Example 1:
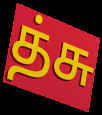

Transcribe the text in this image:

த்சு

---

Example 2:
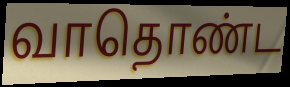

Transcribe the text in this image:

வாதொண்ட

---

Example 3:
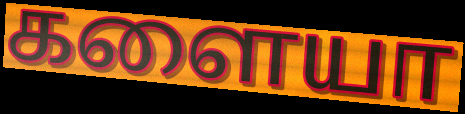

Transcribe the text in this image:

களையா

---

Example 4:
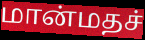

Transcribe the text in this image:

மான்மதச்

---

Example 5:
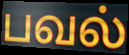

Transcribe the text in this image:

பவல்